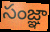
సంజ్ఞా